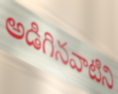
అడిగినవాటిని